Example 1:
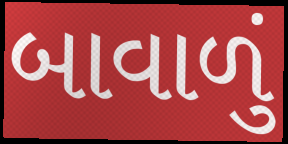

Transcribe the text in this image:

બાવાળું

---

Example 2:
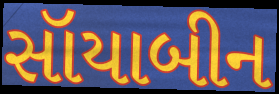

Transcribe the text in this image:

સૉયાબીન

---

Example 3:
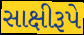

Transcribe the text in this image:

સાક્ષીરૂપે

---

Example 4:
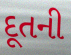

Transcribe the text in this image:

દૂતની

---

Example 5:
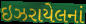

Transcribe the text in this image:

ઇઝરાયેલનાં